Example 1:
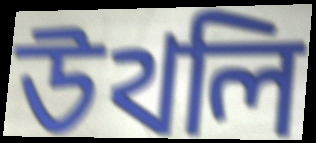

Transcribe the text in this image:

উথলি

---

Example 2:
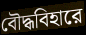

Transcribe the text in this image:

বৌদ্ধবিহারে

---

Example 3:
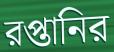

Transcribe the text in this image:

রপ্তানির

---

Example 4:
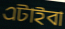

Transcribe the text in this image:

এটাইবা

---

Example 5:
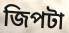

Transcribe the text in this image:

জিপটা